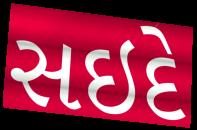
સઇદે